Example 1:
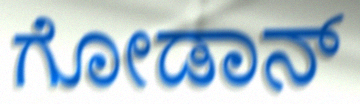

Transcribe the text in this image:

ಗೋಡಾನ್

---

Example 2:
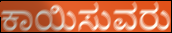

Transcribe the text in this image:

ಕಾಯಿಸುವರು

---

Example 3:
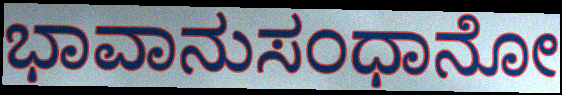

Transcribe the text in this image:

ಭಾವಾನುಸಂಧಾನೋ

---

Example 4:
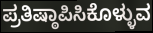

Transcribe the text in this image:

ಪ್ರತಿಷ್ಠಾಪಿಸಿಕೊಳ್ಳುವ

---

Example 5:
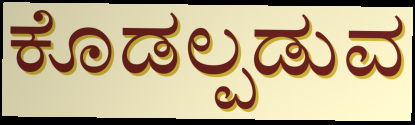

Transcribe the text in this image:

ಕೊಡಲ್ಪಡುವ